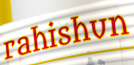
rahishun